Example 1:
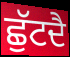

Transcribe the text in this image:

ਛੁੱਟਦੈ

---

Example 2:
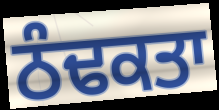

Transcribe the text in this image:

ਠੰਢਕਤਾ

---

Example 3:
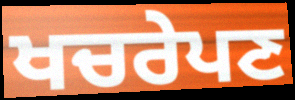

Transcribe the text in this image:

ਖਚਰੇਪਣ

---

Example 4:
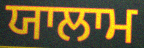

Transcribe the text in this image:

ਯਾਲਾਮ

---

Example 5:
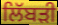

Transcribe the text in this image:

ਲਿੱਬੜੀ